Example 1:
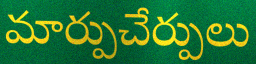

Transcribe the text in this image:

మార్పుచేర్పులు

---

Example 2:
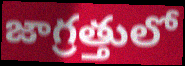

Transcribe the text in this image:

జాగ్రత్తులో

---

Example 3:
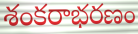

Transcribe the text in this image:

శంకరాభరణం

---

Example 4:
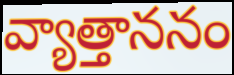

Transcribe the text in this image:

వ్యాత్తాననం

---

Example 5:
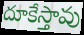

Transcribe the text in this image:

దూకేస్తావు